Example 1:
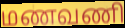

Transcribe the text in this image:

மணவணி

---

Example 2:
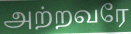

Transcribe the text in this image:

அற்றவரே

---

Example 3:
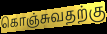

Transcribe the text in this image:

கொஞ்சுவதற்கு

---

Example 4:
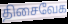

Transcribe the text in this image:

திசைவேக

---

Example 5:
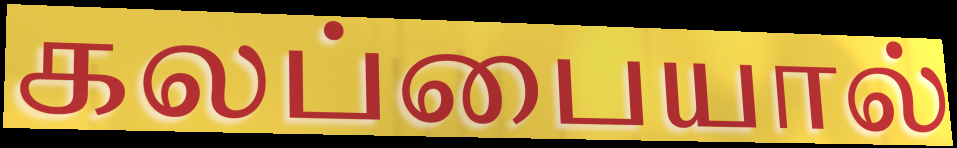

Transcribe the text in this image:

கலப்பையால்